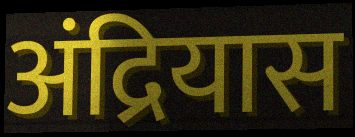
अंद्रियास